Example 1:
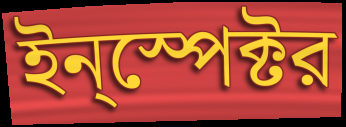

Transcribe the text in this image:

ইন্‌স্পেক্টর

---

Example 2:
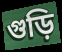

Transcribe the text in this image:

গুড়ি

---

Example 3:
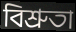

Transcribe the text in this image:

বিশ্রুতা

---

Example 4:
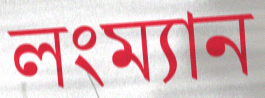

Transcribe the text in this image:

লংম্যান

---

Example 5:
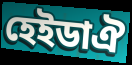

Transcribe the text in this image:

হেইডাঐ